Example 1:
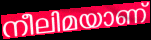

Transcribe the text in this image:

നീലിമയാണ്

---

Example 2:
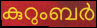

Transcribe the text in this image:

കുറുംബർ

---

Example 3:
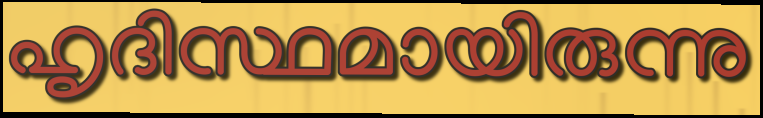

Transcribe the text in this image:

ഹൃദിസ്ഥമായിരുന്നു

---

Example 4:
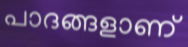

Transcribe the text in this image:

പാദങ്ങളാണ്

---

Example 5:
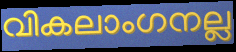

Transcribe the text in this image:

വികലാംഗനല്ല